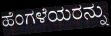
ಹೆಂಗಳೆಯರನ್ನು